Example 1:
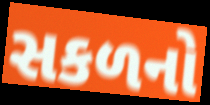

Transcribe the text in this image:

સકળનો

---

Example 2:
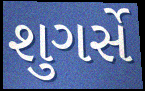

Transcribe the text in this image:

શુગર્સે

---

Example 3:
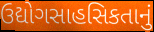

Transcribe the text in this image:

ઉદ્યોગસાહસિકતાનું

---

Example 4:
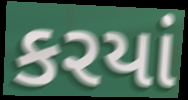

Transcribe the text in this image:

કરયાં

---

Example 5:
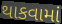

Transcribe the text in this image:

થાકવામાં